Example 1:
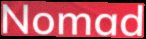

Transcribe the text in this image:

Nomad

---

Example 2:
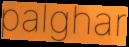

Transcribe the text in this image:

palghar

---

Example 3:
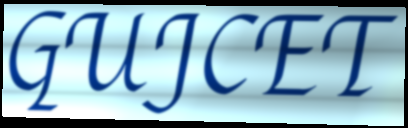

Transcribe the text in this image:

GUJCET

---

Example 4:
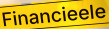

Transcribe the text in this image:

Financieele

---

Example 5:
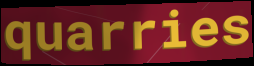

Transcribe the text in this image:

quarries